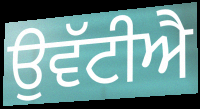
ਉਵੱਟੀਐ